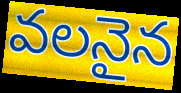
వలనైన